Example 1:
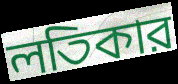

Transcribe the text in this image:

লতিকার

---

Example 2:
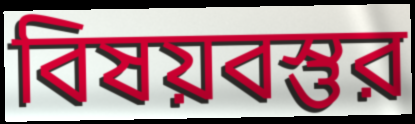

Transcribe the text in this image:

বিষয়বস্তুর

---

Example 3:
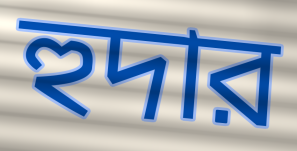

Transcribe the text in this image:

হুদার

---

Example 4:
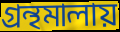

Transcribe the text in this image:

গ্রন্থমালায়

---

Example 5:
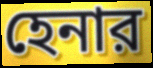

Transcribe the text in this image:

হেনার